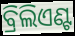
ବ୍ରିଲିଏଣ୍ଟ